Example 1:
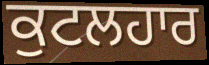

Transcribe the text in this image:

ਕੁਟਲਹਾਰ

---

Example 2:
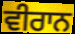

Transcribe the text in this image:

ਵੀਰਾਨ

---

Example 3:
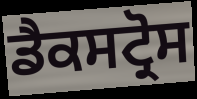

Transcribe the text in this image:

ਡੈਕਸਟ੍ਰੋਸ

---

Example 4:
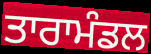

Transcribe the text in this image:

ਤਾਰਾਮੰਡਲ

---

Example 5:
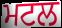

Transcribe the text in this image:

ਮਟਲ